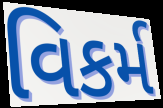
વિકર્મ